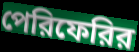
পেরিফেরির